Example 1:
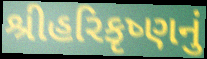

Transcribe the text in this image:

શ્રીહરિકૃષ્ણનું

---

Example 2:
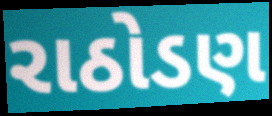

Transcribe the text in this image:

રાઠોડણ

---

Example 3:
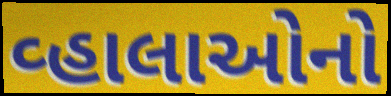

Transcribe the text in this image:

વ્હાલાઓનો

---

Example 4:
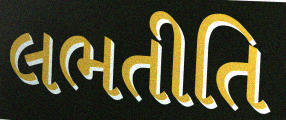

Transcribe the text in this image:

લભતીતિ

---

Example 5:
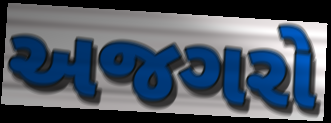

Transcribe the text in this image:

અજગરો